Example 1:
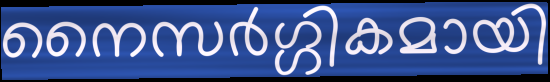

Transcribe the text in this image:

നൈസർഗ്ഗികമായി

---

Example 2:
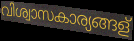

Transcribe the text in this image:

വിശ്വാസകാര്യങ്ങള്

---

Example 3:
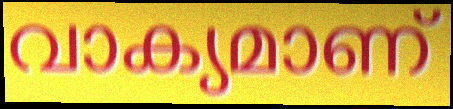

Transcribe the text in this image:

വാക്യമാണ്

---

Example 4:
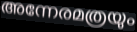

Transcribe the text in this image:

അന്നേരമത്രയും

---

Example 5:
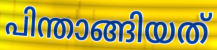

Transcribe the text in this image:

പിന്താങ്ങിയത്